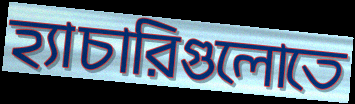
হ্যাচারিগুলোতে